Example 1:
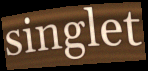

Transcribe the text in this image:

singlet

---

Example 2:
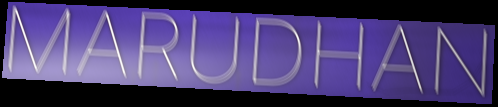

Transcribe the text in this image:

MARUDHAN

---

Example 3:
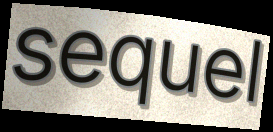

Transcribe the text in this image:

sequel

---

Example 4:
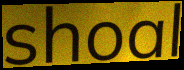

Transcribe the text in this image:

shoal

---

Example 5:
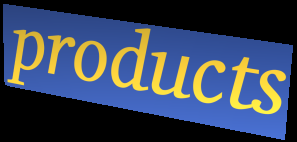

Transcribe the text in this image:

products